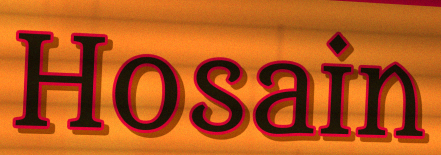
Hosain